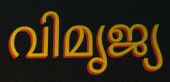
വിമൃജ്യ